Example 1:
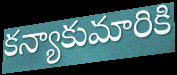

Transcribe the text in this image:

కన్యాకుమారికి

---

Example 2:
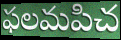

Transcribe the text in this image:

ఫలమపిచ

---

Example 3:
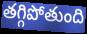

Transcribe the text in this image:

తగ్గిపోతుంది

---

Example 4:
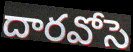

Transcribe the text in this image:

దారవోసె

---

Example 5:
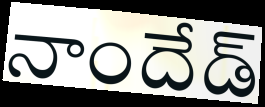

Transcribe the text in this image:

నాందేడ్